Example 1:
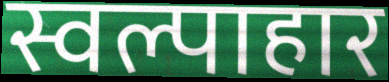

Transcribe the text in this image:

स्‍वल्‍पाहार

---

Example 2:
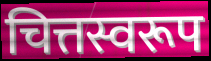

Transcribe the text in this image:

चित्तस्वरूप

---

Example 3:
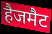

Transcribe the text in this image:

हैजमैट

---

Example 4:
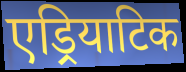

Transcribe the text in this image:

एड्रियाटिक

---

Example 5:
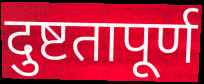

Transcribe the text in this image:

दुष्टतापूर्ण